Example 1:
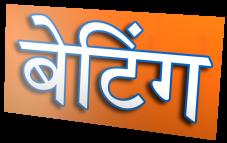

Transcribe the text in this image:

बेटिंग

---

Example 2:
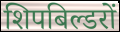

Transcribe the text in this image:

शिपबिल्डरों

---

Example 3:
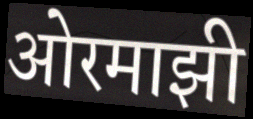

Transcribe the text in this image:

ओरमाझी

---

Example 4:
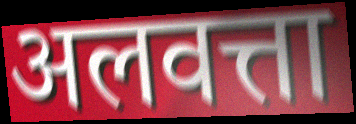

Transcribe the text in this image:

अलवत्ता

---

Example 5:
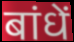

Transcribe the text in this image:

बांधें